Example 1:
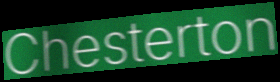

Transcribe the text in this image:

Chesterton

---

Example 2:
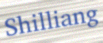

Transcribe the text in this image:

Shilliang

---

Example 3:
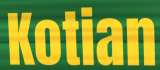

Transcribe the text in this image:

Kotian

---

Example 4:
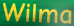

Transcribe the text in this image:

Wilma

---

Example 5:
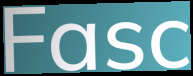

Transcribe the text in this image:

Fasc